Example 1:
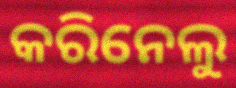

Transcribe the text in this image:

କରିନେଲୁ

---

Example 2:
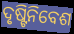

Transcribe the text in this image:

ଦୃଷ୍ଟିନିବେଶ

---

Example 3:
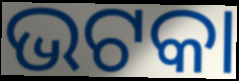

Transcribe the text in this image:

ଭଟକା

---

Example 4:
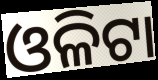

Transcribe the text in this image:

ଓଳିଟା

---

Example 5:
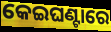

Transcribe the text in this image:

କେଇଘଣ୍ଟାରେ